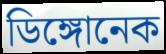
ডিঙ্গোনেক